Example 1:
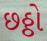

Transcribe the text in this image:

છઠ્ઠો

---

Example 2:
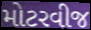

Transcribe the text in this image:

મોટરવીજ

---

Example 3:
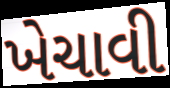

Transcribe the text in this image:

ખેચાવી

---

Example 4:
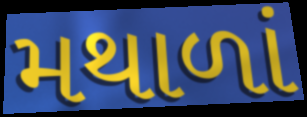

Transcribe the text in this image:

મથાળાં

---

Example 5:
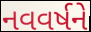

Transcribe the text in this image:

નવવર્ષને